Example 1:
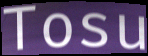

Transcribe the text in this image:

Tosu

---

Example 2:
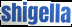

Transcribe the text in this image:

shigella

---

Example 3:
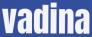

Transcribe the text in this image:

vadina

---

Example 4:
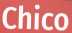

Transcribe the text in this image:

Chico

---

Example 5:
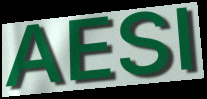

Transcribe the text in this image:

AESI